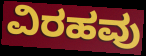
ವಿರಹವು